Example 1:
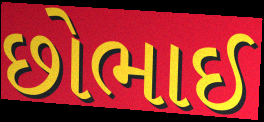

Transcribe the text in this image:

છોભાઈ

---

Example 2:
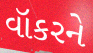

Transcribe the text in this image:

વૉકરને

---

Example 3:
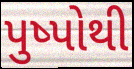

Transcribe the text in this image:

પુષ્પોથી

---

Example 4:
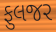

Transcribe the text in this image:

ફુલજર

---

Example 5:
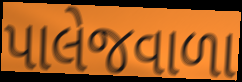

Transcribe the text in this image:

પાલેજવાળા